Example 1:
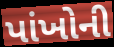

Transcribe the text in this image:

પાંખોની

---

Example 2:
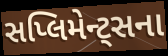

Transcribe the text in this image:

સપ્લિમેન્ટ્સના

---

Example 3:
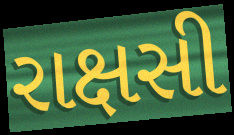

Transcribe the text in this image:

રાક્ષસી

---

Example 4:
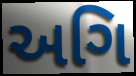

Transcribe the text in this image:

અગિ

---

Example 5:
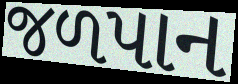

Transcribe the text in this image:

જળપાન